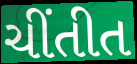
ચીંતીત